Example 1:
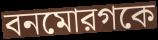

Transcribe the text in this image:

বনমোরগকে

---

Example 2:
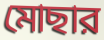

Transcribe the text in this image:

মোছার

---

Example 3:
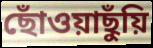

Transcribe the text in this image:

ছোঁওয়াছুঁয়ি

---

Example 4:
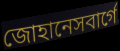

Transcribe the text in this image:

জোহানেসবার্গে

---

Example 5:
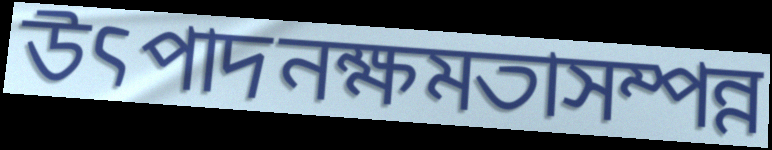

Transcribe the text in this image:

উৎপাদনক্ষমতাসম্পন্ন